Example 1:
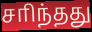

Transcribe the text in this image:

சரிந்தது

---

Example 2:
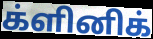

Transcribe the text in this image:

க்ளினிக்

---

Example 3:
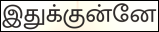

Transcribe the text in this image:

இதுக்குன்னே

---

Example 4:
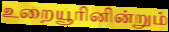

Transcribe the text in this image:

உறையூரினின்றும்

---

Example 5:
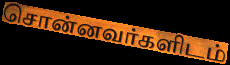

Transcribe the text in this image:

சொன்னவர்களிடம்